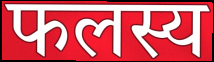
फलस्य